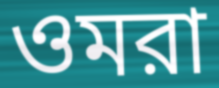
ওমরা